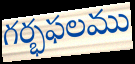
గర్భఫలము